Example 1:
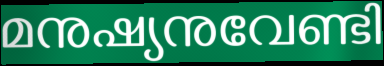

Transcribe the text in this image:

മനുഷ്യനുവേണ്ടി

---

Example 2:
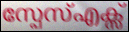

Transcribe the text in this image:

സ്പേസ്എക്സ്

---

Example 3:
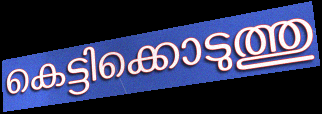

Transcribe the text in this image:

കെട്ടിക്കൊടുത്തു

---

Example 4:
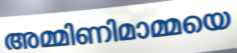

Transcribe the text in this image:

അമ്മിണിമാമ്മയെ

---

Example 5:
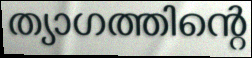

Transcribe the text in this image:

ത്യാഗത്തിന്റെ